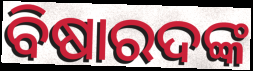
ବିଷାରଦଙ୍କ